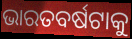
ଭାରତବର୍ଷଟାକୁ